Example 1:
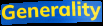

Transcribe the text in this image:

Generality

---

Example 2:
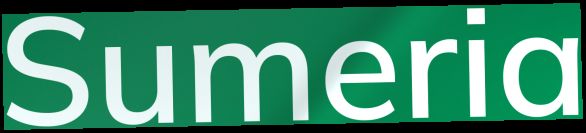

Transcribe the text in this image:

Sumeria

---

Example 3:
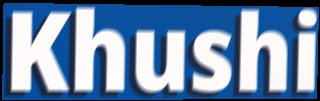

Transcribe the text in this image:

Khushi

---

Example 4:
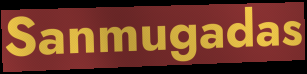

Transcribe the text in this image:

Sanmugadas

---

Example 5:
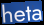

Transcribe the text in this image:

heta